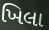
ખિલા